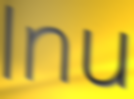
Inu